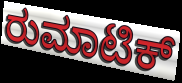
ರುಮಾಟಿಕ್